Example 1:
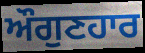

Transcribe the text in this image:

ਔਗੁਣਹਾਰ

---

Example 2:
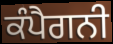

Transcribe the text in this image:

ਕੰਪੈਗਨੀ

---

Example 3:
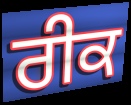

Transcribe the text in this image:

ਰੀਕ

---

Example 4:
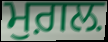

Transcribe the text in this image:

ਮੁਗ਼ਲ਼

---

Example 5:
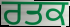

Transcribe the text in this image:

ਰਤਕ